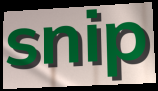
snip